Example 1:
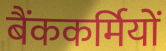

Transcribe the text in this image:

बैंककर्मियों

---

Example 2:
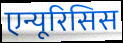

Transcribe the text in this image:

एन्यूरिसिस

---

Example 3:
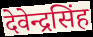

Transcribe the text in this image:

देवेन्द्रसिंह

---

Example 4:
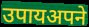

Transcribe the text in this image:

उपायअपने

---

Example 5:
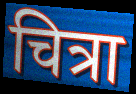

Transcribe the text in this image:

चित्रा